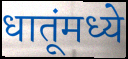
धातूंमध्ये